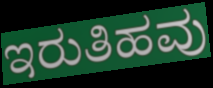
ಇರುತಿಹವು